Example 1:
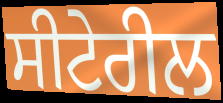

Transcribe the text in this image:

ਸੀਟੇਰੀਲ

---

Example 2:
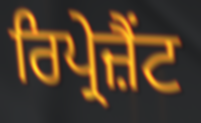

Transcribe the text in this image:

ਰਿਪ੍ਰੇਜ਼ੈਂਟ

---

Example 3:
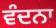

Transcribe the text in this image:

ਵੰਦਨਾ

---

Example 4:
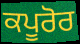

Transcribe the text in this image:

ਕਪੂਰੋਰ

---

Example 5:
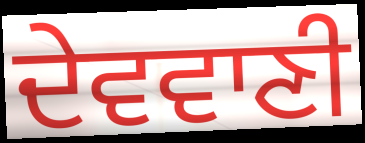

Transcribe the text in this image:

ਦੇਵਵਾਣੀ